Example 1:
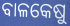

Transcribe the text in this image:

ବାଳକେଷୁ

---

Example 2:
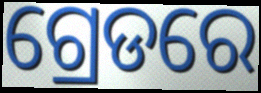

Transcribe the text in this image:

ଗ୍ରେଡରେ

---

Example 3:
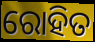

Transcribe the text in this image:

ରୋହିତ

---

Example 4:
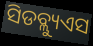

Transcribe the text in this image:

ସିଡବ୍ଲ୍ୟୁଏସ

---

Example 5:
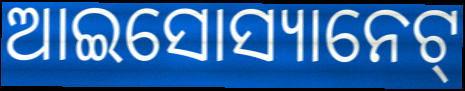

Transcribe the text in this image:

ଆଇସୋସ୍ୟାନେଟ୍